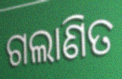
ଗଲାଣିତ